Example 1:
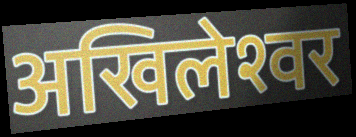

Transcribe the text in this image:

अखिलेश्वर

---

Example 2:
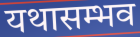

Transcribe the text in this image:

यथासम्भव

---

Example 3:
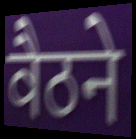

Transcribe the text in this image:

वैठने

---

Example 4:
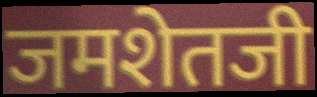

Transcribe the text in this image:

जमशेतजी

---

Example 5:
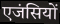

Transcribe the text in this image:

एजंसियों